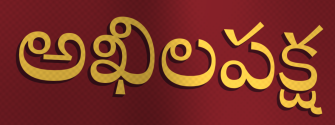
అఖిలపక్ష